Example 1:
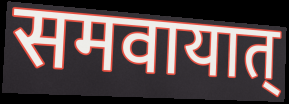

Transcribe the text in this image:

समवायात्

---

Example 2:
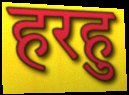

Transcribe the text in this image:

हरहु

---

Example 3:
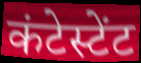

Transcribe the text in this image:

कंटेस्टेंट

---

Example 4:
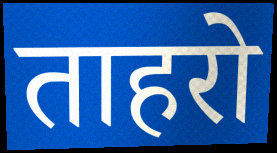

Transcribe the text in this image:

ताहरो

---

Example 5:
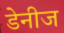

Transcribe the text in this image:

डेनीज